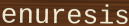
enuresis